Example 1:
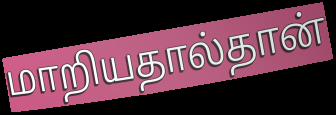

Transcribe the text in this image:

மாறியதால்தான்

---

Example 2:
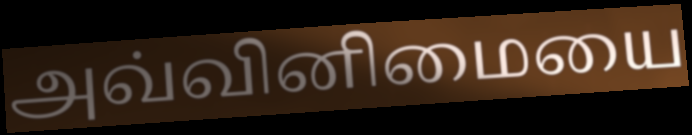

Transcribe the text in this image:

அவ்வினிமையை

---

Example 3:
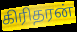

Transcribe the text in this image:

கிரிதரன்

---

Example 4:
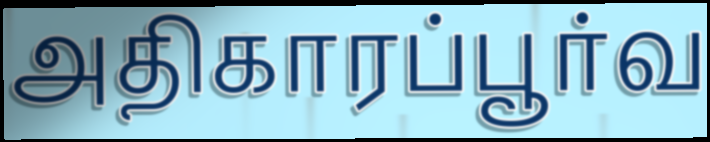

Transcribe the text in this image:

அதிகாரப்பூர்வ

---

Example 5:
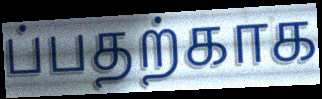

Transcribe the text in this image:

ப்பதற்காக